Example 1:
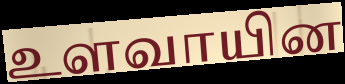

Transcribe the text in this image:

உளவாயின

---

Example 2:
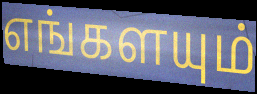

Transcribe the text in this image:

எங்களயும்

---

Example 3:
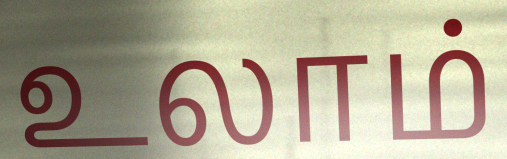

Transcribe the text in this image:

உலாம்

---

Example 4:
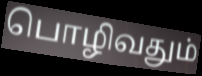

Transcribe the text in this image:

பொழிவதும்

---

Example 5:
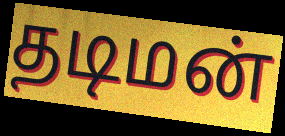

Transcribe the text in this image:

தடிமன்